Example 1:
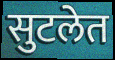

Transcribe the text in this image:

सुटलेत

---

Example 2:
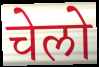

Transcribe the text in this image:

चेलो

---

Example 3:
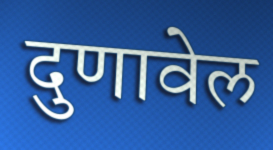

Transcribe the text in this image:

दुणावेल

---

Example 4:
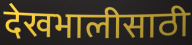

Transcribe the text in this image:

देखभालीसाठी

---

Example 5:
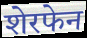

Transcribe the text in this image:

शेरफेन